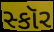
સ્કૉર